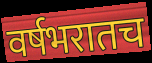
वर्षभरातच